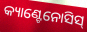
କ୍ୟାଣ୍ଟେନୋସିସ୍